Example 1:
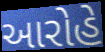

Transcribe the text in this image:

આરોહે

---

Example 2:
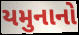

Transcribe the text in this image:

યમુનાનો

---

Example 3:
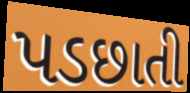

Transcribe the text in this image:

પડછાતી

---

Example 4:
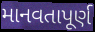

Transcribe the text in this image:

માનવતાપૂર્ણ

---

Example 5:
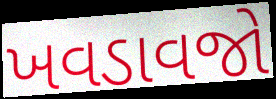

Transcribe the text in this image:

ખવડાવજો